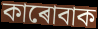
কাৰোবাক